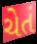
ચેતં